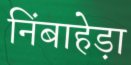
निंबाहेड़ा